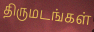
திருமடங்கள்